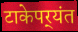
टाकेपर्यंत